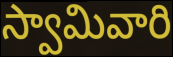
స్వామివారి